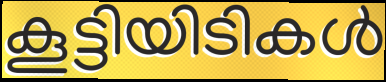
കൂട്ടിയിടികൾ